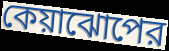
কেয়াঝোপের